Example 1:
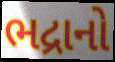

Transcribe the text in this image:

ભદ્રાનો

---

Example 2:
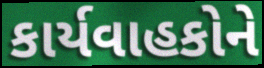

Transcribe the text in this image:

કાર્યવાહકોને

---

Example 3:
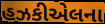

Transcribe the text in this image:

હઝકીએલના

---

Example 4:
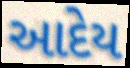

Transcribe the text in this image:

આદેય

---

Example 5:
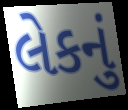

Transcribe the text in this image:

લેકનું